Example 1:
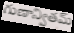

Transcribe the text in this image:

గుణాన్వితమ్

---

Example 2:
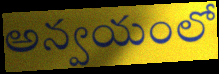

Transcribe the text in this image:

అన్వయంలో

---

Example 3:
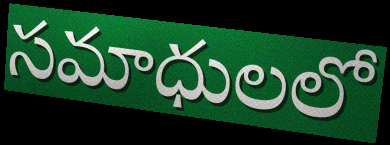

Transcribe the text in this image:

సమాధులలో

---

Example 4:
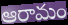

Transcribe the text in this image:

ఆరామం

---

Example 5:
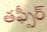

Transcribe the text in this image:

తఫ్సీర్